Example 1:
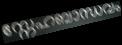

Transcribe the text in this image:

സ്നേഹബാന്ധവം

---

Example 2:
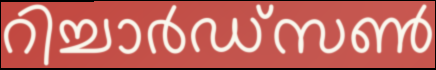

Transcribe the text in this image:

റിച്ചാർഡ്സൺ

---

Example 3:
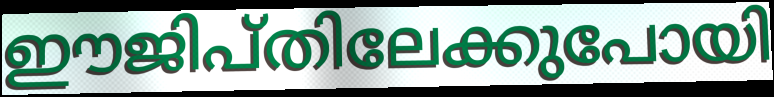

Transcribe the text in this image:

ഈജിപ്തിലേക്കുപോയി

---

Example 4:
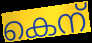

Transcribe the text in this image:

കെന്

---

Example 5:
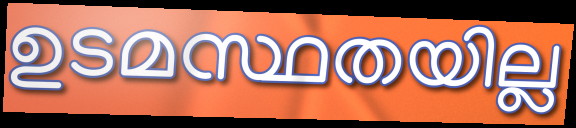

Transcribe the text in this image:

ഉടമസ്ഥതയില്ല